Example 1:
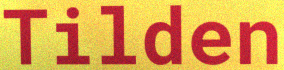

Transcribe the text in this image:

Tilden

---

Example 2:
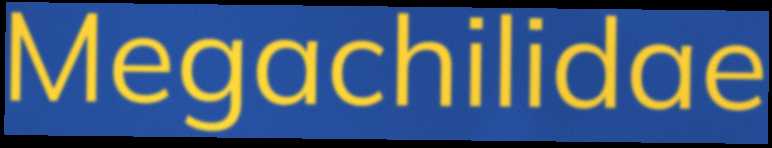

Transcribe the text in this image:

Megachilidae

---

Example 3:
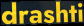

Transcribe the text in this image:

drashti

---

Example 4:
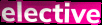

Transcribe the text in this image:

elective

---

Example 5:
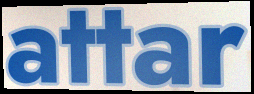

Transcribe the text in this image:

attar